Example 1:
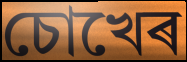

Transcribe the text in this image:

চোখেৰ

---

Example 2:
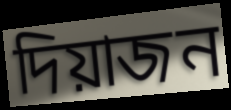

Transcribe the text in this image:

দিয়াজন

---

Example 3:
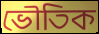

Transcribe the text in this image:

ভৌতিক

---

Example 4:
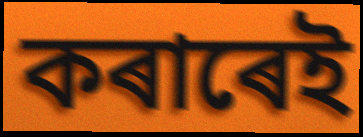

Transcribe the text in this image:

কৰাৰেই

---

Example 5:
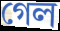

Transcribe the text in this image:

গেল